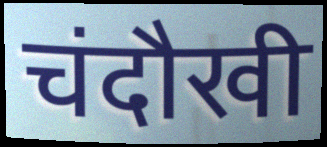
चंदौखी